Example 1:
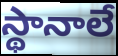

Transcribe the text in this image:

స్థానాలే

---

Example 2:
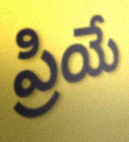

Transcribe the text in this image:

ప్రియే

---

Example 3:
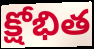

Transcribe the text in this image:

క్షోభిత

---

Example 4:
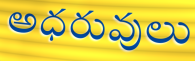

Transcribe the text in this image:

అధరువులు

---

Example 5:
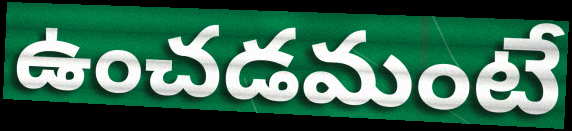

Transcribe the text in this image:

ఉంచడమంటే